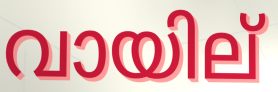
വായില്